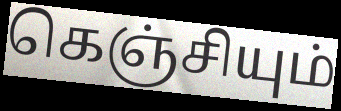
கெஞ்சியும்